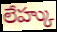
లేహ్కు